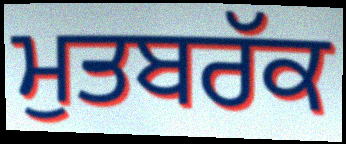
ਮੁਤਬਰੱਕ